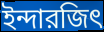
ইন্দারজিৎ